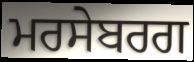
ਮਰਸੇਬਰਗ